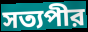
সত্যপীর